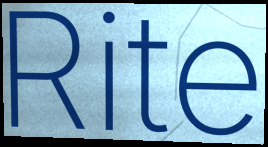
Rite